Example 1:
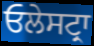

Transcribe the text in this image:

ਓਲੇਸਟ੍ਰਾ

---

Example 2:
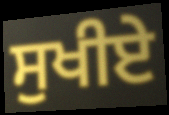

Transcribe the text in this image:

ਸੁਖੀਏ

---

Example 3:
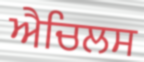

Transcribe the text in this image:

ਐਚਿਲਸ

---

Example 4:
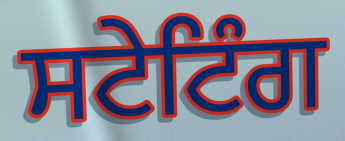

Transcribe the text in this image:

ਸਟੇਟਿੰਗ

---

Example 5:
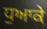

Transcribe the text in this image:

ਧੁਆਕੇ